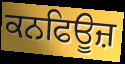
ਕਨਫਿਊਜ਼